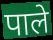
पाले